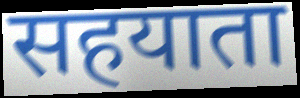
सहयाता